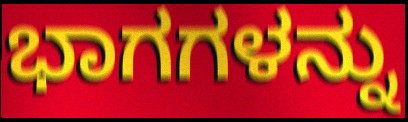
ಭಾಗಗಳನ್ನು